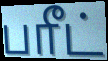
பரீட்